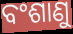
ବଂଶାଣୁ